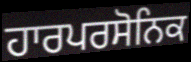
ਹਾਰਪਰਸੋਨਿਕ